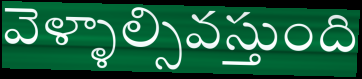
వెళ్ళాల్సివస్తుంది